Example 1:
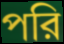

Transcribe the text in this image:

পরি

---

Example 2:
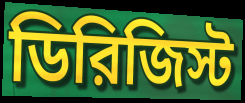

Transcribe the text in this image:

ডিরিজিস্ট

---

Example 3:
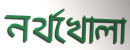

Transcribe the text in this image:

নর্থখোলা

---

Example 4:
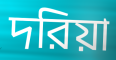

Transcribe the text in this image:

দরিয়া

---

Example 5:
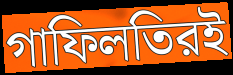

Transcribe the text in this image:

গাফিলতিরই